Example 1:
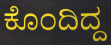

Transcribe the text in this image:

ಕೊಂದಿದ್ದ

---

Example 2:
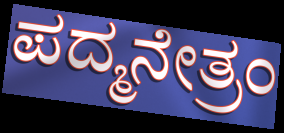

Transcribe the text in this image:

ಪದ್ಮನೇತ್ರಂ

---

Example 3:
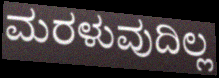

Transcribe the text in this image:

ಮರಳುವುದಿಲ್ಲ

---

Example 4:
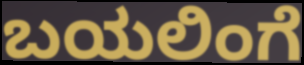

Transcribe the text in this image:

ಬಯಲಿಂಗೆ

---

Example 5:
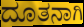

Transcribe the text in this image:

ದೂತನಾಗಿ